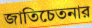
জাতিচেতনার